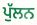
ਪੁੱਲਨ